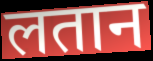
लतान